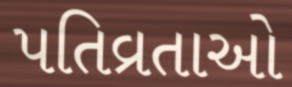
પતિવ્રતાઓ